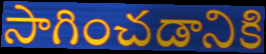
సాగించడానికి